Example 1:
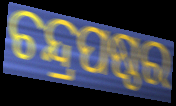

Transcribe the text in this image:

ଚନ୍ଦ୍ରପଷ୍ଠର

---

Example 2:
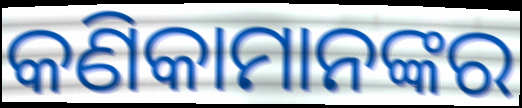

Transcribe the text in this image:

କଣିକାମାନଙ୍କର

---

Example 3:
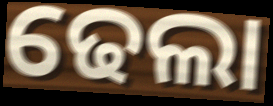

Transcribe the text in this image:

ଢେଲା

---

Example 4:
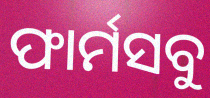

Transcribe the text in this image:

ଫାର୍ମସବୁ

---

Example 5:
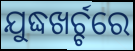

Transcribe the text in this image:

ଯୁଦ୍ଧଖର୍ଚ୍ଚରେ